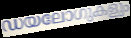
ഡയലോഗുകളും